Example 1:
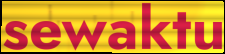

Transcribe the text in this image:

sewaktu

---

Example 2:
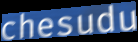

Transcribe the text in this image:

chesudu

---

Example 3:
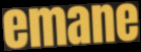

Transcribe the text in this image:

emane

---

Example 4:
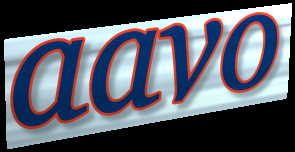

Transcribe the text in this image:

aavo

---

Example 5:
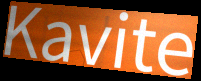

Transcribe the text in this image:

Kavite